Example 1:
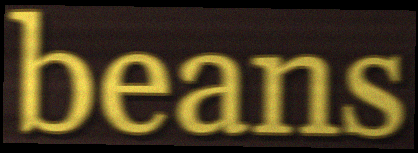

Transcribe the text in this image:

beans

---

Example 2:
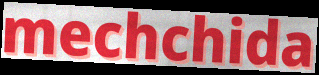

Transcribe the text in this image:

mechchida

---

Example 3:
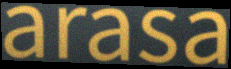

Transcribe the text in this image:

arasa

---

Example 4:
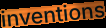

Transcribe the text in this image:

inventions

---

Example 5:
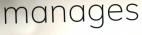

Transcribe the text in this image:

manages